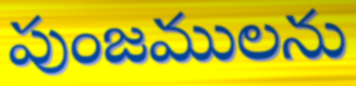
పుంజములను